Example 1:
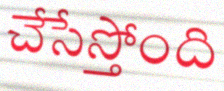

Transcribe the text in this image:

చేసేస్తోంది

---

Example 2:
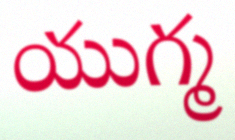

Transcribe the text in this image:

యుగ్మ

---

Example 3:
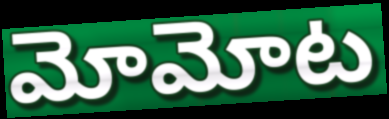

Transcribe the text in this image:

మోమోట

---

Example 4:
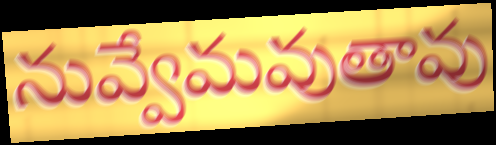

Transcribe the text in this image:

నువ్వేమవుతావు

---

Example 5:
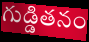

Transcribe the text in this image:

గుడ్డితనం